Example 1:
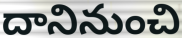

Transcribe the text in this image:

దానినుంచి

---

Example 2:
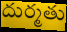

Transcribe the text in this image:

దుర్మతు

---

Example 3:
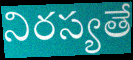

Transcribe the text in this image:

నిరస్యతే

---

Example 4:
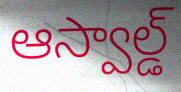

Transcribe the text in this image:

ఆస్వాల్డ్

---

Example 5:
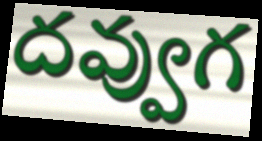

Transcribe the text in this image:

దవ్వుగ